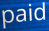
paid